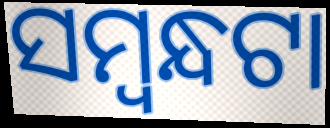
ସମ୍ବନ୍ଧଟା